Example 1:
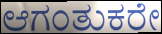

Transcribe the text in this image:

ಆಗಂತುಕರೇ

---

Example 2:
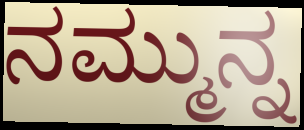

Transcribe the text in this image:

ನಮ್ಮುನ್ನ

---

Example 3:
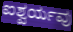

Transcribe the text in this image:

ಐಶ್ವರ್ಯವು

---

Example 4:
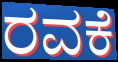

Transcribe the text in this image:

ರವಕೆ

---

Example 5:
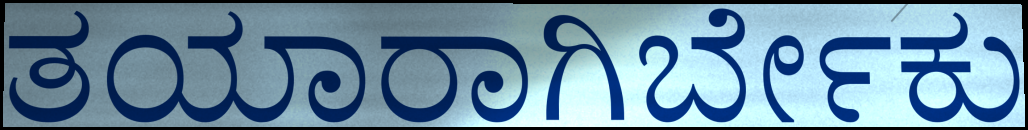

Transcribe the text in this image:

ತಯಾರಾಗಿರ್ಬೇಕು